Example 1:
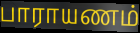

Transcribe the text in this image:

பாராயணம்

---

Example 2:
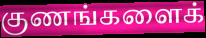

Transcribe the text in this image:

குணங்களைக்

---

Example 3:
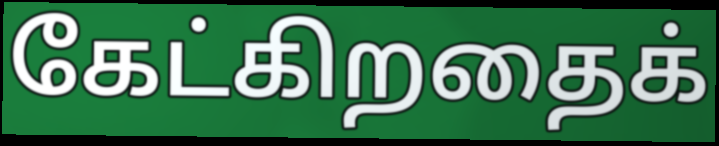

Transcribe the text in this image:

கேட்கிறதைக்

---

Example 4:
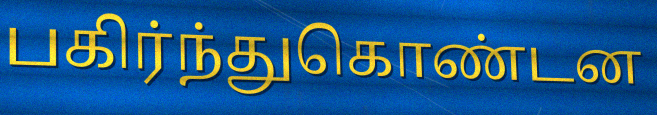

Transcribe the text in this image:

பகிர்ந்துகொண்டன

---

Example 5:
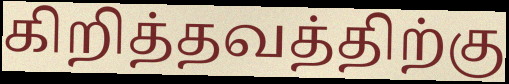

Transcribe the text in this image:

கிறித்தவத்திற்கு